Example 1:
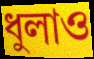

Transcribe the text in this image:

ধুলাও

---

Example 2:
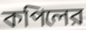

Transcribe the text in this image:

কপিলের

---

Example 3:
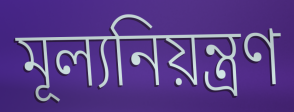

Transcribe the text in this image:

মূল্যনিয়ন্ত্রণ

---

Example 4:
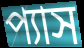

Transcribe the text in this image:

প্যাস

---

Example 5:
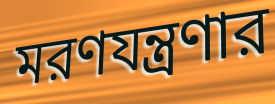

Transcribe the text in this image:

মরণযন্ত্রণার